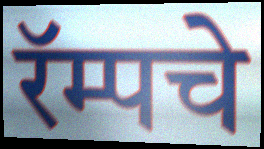
रॅम्पचे